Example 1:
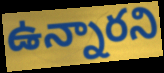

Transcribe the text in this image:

ఉన్నారని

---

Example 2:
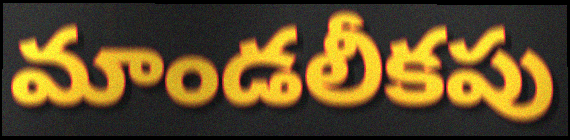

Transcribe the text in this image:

మాండలీకపు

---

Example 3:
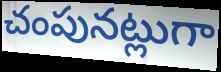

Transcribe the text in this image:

చంపునట్లుగా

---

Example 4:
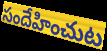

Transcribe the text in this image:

సందేహించుట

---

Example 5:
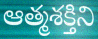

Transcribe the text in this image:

ఆత్మశక్తిని